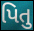
પિતુ